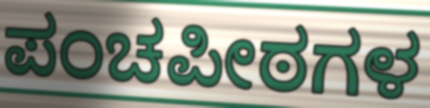
ಪಂಚಪೀಠಗಳ